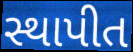
સ્થાપીત